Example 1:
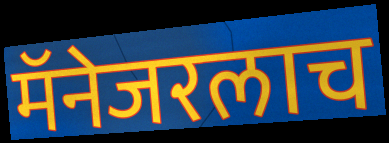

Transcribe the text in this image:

मॅनेजरलाच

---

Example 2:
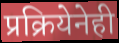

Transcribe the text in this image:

प्रक्रियेनेही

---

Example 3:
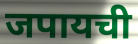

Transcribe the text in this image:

जपायची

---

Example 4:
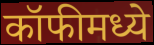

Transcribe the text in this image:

कॉफीमध्ये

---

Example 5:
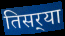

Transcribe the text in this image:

तिसर्या